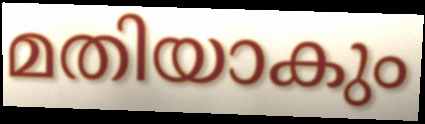
മതിയാകും